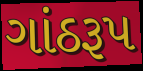
ગાંઠરૂપ